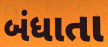
બંધાતા